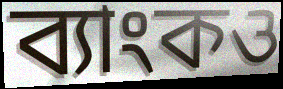
ব্যাংকও